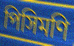
পিসিমণি